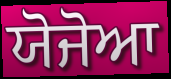
ਯੋਜੋਆ